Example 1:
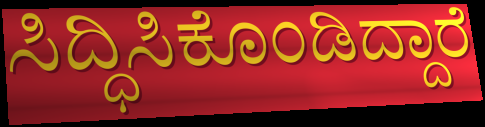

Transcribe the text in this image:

ಸಿದ್ಧಿಸಿಕೊಂಡಿದ್ದಾರೆ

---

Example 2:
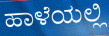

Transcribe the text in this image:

ಹಾಳೆಯಲ್ಲಿ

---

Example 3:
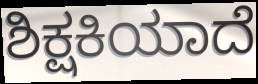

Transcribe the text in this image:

ಶಿಕ್ಷಕಿಯಾದೆ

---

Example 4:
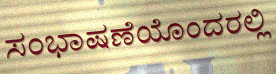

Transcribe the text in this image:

ಸಂಭಾಷಣೆಯೊಂದರಲ್ಲಿ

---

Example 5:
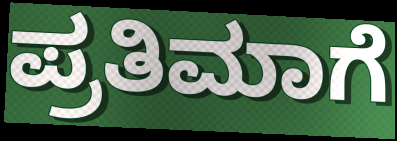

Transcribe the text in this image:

ಪ್ರತಿಮಾಗೆ